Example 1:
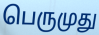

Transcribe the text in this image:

பெருமுது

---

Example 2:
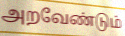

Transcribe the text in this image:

அறவேண்டும்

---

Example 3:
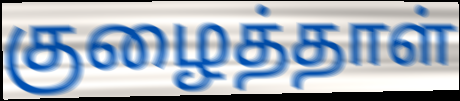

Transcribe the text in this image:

குழைத்தாள்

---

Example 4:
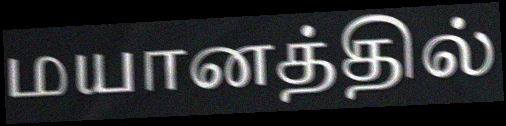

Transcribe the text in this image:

மயானத்தில்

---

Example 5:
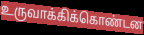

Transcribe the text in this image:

உருவாக்கிக்கொண்டன